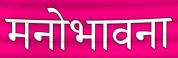
मनोभावना